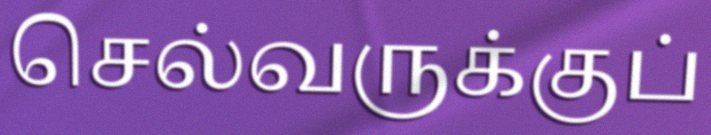
செல்வருக்குப்